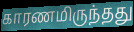
காரணமிருந்தது